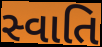
સ્વાતિ